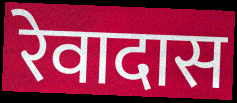
रेवादास